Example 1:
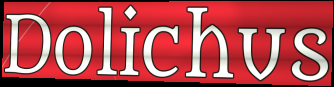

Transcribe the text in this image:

Dolichus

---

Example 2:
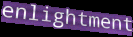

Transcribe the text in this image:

enlightment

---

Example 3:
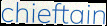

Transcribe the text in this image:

chieftain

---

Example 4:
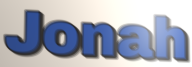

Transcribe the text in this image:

Jonah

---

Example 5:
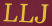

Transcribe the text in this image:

LLJ